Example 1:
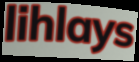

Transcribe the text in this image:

lihlays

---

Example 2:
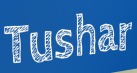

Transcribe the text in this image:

Tushar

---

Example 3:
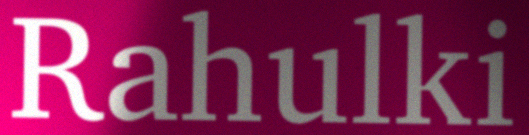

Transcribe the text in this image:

Rahulki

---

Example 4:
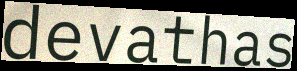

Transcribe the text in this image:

devathas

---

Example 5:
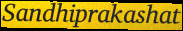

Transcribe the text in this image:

Sandhiprakashat